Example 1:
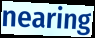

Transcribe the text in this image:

nearing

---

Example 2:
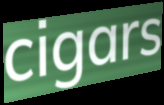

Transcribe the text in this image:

cigars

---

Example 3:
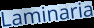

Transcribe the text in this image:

Laminaria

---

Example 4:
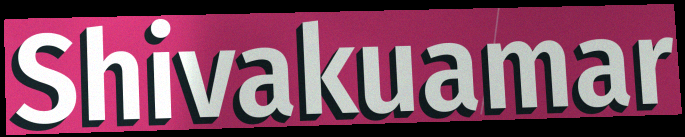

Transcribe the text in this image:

Shivakuamar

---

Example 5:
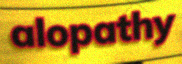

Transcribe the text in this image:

alopathy